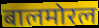
बालमोरल